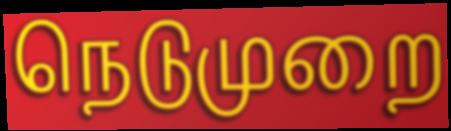
நெடுமுறை